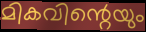
മികവിന്റെയും